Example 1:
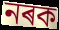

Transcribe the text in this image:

নৰক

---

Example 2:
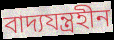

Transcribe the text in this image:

বাদ্যযন্ত্ৰহীন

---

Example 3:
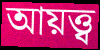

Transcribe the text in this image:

আয়ত্ত্ব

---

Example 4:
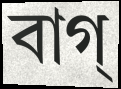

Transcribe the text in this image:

বাগ্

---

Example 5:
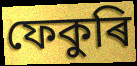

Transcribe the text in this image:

ফেকুৰি